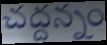
చద్దన్నం